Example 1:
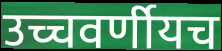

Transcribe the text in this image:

उच्चवर्णीयच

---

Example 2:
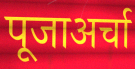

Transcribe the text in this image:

पूजाअर्चा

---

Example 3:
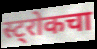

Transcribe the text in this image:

स्ट्रोकचा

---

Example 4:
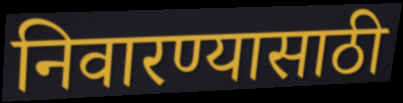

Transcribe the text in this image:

निवारण्यासाठी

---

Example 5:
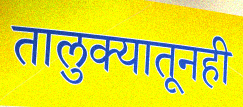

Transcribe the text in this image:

तालुक्यातूनही